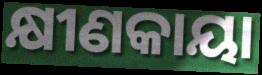
କ୍ଷୀଣକାୟା